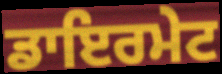
ਡਾਇਰਮੇਟ